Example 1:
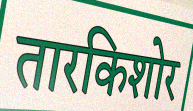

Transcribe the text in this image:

तारकिशोर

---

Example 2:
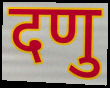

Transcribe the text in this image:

दणु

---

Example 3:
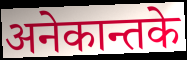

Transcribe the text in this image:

अनेकान्तके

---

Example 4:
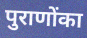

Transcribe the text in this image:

पुराणोंका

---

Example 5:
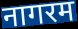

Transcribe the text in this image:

नागरम